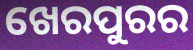
ଖେରପୁରର